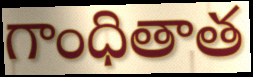
గాంధితాత